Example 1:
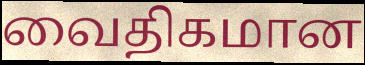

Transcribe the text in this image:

வைதிகமான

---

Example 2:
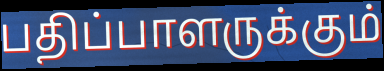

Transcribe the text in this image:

பதிப்பாளருக்கும்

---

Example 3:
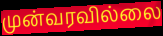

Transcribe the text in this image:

முன்வரவில்லை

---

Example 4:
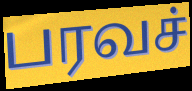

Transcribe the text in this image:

பரவச்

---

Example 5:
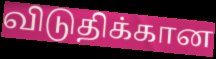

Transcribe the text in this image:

விடுதிக்கான